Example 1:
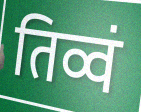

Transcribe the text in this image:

तिव्वं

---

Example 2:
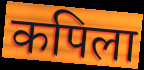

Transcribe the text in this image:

कपिला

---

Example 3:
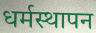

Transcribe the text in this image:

धर्मस्थापन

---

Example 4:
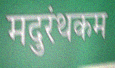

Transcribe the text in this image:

मदुरंथकम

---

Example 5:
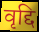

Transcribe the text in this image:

वृद्दि